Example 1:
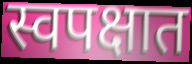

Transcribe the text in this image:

स्वपक्षात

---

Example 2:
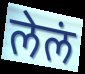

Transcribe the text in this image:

लेलं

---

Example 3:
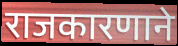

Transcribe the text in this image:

राजकारणाने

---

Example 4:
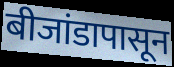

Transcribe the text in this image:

बीजांडापासून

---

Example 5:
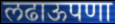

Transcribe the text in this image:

लढाऊपणा